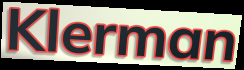
Klerman